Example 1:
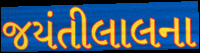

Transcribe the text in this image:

જયંતીલાલના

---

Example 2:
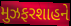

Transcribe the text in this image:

મુઝફરશાહને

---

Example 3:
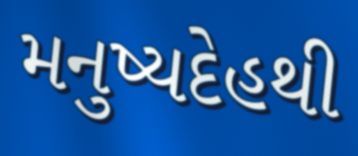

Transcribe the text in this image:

મનુષ્યદેહથી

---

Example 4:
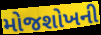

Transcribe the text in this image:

મોજશોખની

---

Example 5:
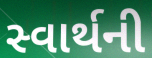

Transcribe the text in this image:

સ્વાર્થની